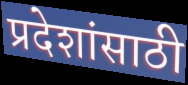
प्रदेशांसाठी